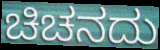
ಚಿಚನದು